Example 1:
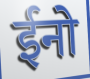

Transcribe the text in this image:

ईनो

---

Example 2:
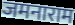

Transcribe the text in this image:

जमनाराम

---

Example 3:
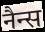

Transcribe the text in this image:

नैन्स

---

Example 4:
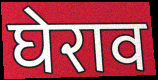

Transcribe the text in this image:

घेराव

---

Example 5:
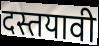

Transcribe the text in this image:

दस्तयावी